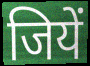
जियें